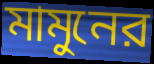
মামুনের